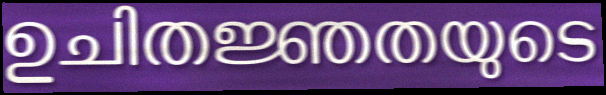
ഉചിതജ്ഞതയുടെ